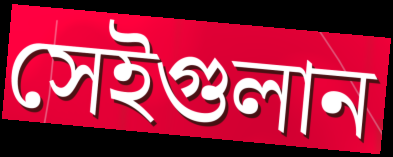
সেইগুলান